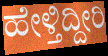
ಹೇಳ್ತಿದ್ದೀರಿ